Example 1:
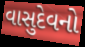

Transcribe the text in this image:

વાસુદેવનો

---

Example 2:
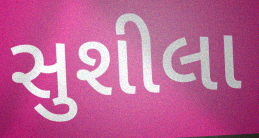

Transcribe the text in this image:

સુશીલા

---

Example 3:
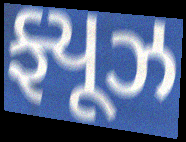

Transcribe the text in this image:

ફ્યૂઝ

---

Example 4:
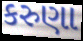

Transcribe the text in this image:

કરુણા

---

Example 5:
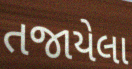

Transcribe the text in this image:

તજાયેલા